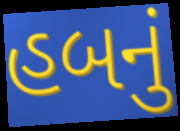
હબનું